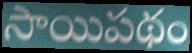
సాయిపథం